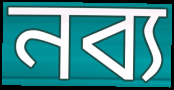
নব্য